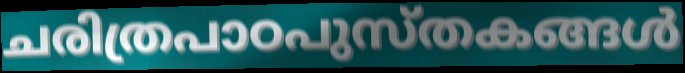
ചരിത്രപാഠപുസ്തകങ്ങൾ